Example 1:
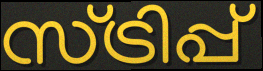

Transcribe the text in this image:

സ്ട്രിപ്പ്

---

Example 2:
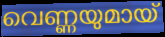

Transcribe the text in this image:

വെണ്ണയുമായ്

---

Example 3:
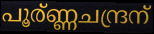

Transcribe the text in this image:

പൂര്ണ്ണചന്ദ്രന്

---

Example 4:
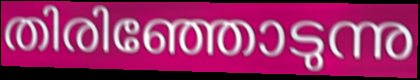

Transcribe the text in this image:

തിരിഞ്ഞോടുന്നു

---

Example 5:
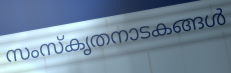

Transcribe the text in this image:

സംസ്കൃതനാടകങ്ങൾ